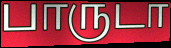
பாருடா